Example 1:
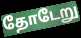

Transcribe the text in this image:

தோடேறு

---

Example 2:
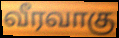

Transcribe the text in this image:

வீரவாகு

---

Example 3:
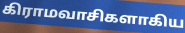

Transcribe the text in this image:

கிராமவாசிகளாகிய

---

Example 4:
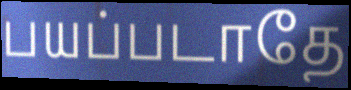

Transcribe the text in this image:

பயப்படாதே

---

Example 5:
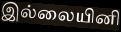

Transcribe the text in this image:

இல்லையினி